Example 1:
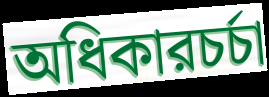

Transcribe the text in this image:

অধিকারচর্চা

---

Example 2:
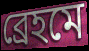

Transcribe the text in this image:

ব্রেহমে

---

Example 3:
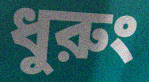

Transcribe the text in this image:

ধুরুং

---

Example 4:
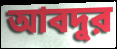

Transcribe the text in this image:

আবদুর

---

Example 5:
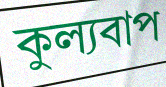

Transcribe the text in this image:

কুল্যবাপ